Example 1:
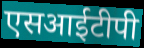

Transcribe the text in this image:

एसआईटीपी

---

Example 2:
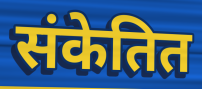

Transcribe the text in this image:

संकेतित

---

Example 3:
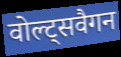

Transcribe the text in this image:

वोल्ट्सवैगन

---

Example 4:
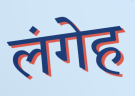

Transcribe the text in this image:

लंगेह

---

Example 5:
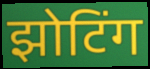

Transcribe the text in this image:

झोटिंग